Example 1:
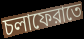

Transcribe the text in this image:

চলাফেরাতে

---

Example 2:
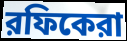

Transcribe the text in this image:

রফিকেরা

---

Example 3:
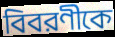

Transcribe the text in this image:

বিবরণীকে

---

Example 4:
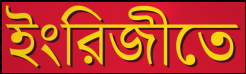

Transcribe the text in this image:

ইংরিজীতে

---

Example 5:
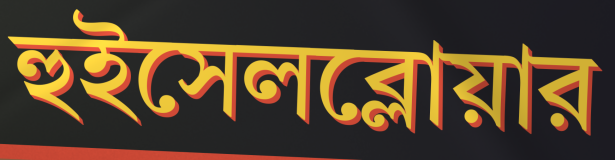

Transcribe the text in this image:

হুইসেলব্লোয়ার